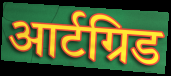
आर्टग्रिड